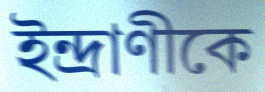
ইন্দ্রাণীকে